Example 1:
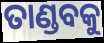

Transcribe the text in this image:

ତାଣ୍ଡବକୁ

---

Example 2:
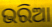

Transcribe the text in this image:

ଭରିଆ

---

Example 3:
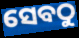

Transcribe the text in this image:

ସେବଠୁ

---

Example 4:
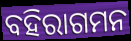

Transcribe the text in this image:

ବହିରାଗମନ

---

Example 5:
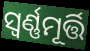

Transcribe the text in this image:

ସ୍ଵର୍ଣ୍ଣମୂର୍ତ୍ତି